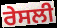
ਰੇਸਲੀ